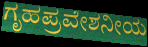
ಗೃಹಪ್ರವೇಶನೀಯ